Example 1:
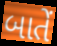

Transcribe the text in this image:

બાતેં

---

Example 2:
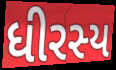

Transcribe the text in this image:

ધીરસ્ય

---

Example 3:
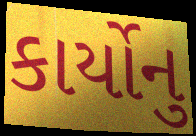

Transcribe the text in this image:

કાર્યોનુ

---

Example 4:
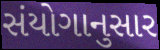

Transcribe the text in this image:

સંયોગાનુસાર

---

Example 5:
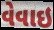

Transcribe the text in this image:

વેવાઇ